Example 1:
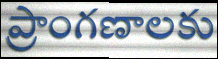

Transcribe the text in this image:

ప్రాంగణాలకు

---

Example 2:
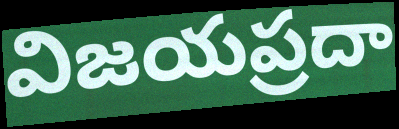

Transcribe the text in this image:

విజయప్రదా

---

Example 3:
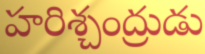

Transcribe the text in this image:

హరిశ్చంద్రుడు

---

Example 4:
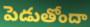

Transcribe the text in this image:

పెడుతోందా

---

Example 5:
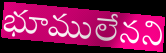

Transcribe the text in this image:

భూములేనని